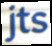
jts